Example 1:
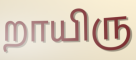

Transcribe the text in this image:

றாயிரு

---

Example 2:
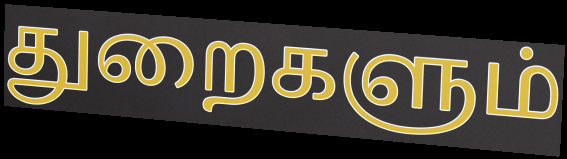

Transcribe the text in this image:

துறைகளும்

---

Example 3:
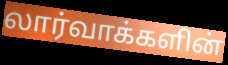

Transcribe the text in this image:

லார்வாக்களின்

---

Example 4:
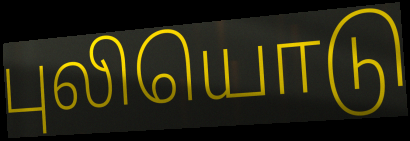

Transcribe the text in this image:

புலியொடு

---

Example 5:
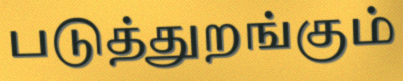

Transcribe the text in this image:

படுத்துறங்கும்